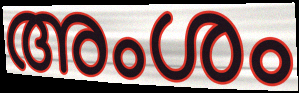
അംശം